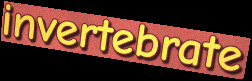
invertebrate